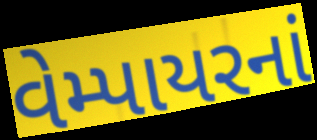
વેમ્પાયરનાં